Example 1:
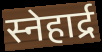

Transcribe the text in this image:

स्नेहार्द्र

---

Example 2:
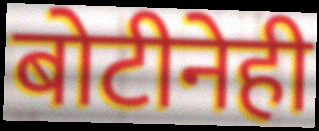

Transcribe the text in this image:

बोटीनेही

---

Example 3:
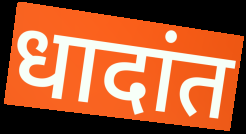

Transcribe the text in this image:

धादांत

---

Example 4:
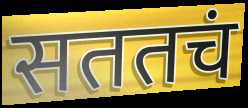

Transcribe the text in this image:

सततचं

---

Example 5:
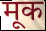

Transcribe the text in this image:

मूक